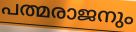
പത്മരാജനും